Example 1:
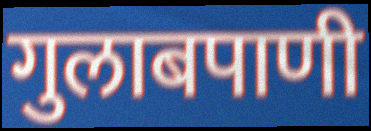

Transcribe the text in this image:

गुलाबपाणी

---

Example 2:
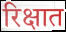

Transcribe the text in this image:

रिक्षात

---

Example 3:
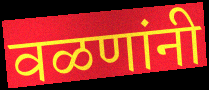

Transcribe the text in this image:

वळणांनी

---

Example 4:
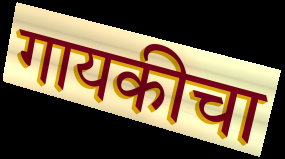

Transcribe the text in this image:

गायकीचा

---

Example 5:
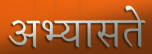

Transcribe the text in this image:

अभ्यासते